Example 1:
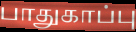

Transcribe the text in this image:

பாதுகாப்பு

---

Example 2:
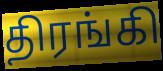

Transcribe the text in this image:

திரங்கி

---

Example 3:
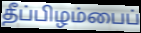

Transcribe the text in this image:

தீப்பிழம்பைப்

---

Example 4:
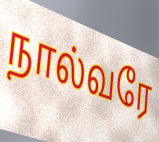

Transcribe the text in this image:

நால்வரே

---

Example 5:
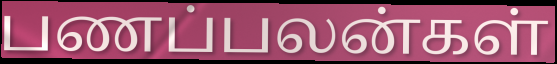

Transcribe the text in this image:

பணப்பலன்கள்